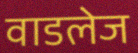
वाडलेज